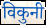
विकुनी